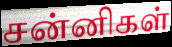
சன்னிகள்